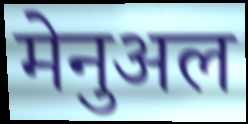
मेनुअल